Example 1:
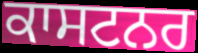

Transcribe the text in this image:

ਕਾਸਟਨਰ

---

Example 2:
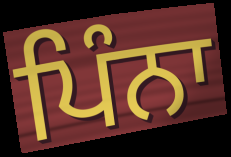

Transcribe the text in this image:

ਪਿੰਨਾ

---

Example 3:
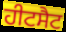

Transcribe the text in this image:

ਹੀਟਸੈਟ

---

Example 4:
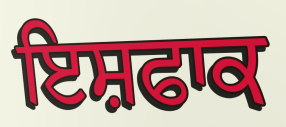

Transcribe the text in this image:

ਇਸ਼ਫਾਕ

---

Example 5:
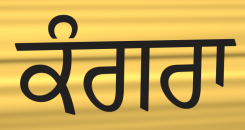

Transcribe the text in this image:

ਕੰਗਰਾ